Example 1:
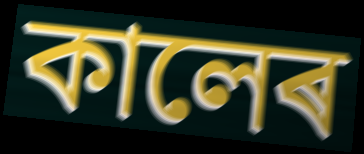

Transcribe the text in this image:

কালেৰ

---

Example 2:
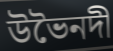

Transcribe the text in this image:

উভৈনদী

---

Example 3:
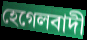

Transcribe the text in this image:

হেগেলবাদী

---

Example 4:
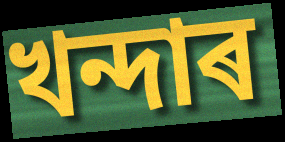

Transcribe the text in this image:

খন্দাৰ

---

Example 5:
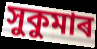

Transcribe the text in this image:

সুকুমাৰ